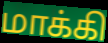
மாக்கி